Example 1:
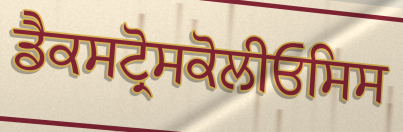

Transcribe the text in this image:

ਡੈਕਸਟ੍ਰੋਸਕੋਲੀਓਸਿਸ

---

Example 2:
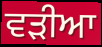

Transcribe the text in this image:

ਵੜੀਆ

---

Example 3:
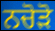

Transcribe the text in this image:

ਨਚੋੜੋ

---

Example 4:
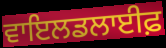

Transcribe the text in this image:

ਵਾਇਲਡਲਾਈਫ਼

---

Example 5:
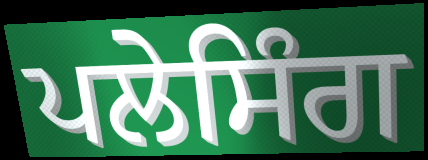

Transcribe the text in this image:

ਪਲੇਸਿੰਗ